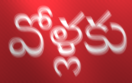
వోళ్లకు